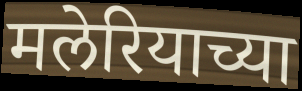
मलेरियाच्या